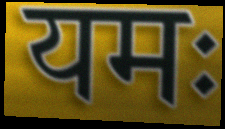
यमः